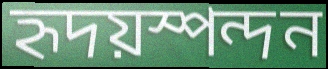
হৃদয়স্পন্দন